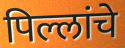
पिल्लांचे